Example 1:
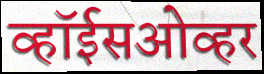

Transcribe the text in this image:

व्हॉईसओव्हर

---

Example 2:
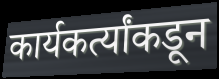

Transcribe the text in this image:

कार्यकर्त्यांकडून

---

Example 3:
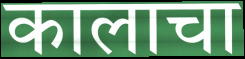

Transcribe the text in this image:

कालाचा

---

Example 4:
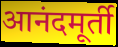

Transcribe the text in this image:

आनंदमूर्ती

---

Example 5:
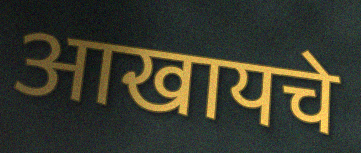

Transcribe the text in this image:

आखायचे